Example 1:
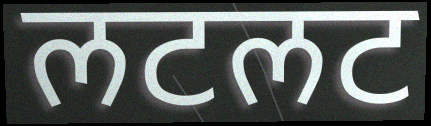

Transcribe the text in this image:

लटलट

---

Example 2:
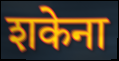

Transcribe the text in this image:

शकेना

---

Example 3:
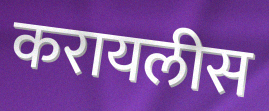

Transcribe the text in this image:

करायलीस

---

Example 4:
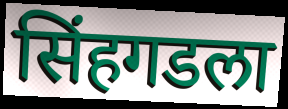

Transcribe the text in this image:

सिंहगडला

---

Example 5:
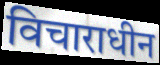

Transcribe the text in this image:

विचाराधीन